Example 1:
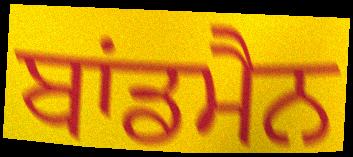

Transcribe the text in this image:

ਬਾਂਡਮੈਨ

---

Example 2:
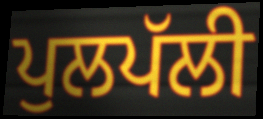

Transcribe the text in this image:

ਪੁਲਪੱਲੀ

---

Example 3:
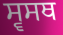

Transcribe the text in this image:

ਸ੍ਵਸਥ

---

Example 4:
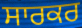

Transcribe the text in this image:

ਸਾਰਕਰ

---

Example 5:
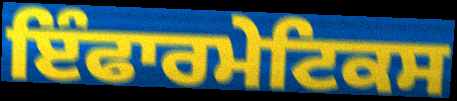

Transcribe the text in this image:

ਇੰਫਾਰਮੇਟਿਕਸ